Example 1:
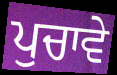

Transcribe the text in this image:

ਪੁਚਾਵੇ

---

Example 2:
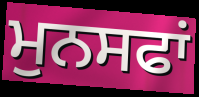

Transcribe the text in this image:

ਮੁਨਸਫਾਂ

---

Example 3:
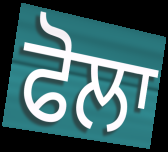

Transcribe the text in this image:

ਫੋਲਾ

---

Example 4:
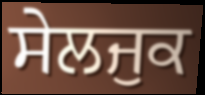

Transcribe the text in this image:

ਸੇਲਜੁਕ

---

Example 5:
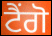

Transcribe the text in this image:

ਟੈਂਗੋ